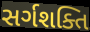
સર્ગશક્તિ